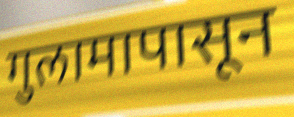
गुलामापासून